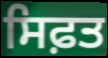
ਸਿਫ਼ਤ